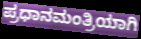
ಪ್ರಧಾನಮಂತ್ರಿಯಾಗಿ